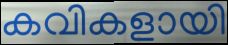
കവികളായി